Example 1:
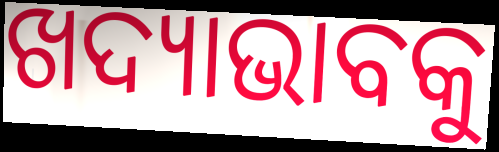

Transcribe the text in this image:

ଖଦ୍ୟାଭାବକୁ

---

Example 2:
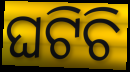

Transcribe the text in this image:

ଘଟିଚି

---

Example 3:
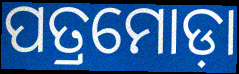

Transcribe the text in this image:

ପତ୍ରମୋଡ଼ା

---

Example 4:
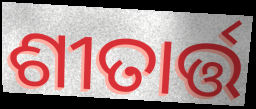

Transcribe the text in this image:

ଶୀତାର୍ତ୍ତ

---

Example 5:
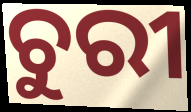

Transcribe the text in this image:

ଚୁରୀ